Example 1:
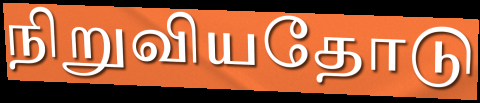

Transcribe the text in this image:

நிறுவியதோடு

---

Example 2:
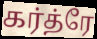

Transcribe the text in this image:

கர்த்ரே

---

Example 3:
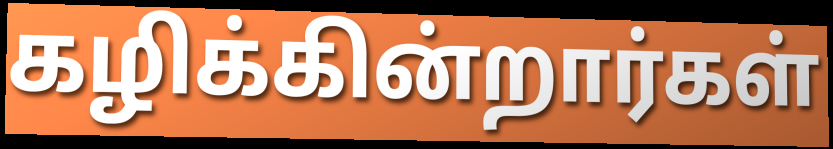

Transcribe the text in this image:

கழிக்கின்றார்கள்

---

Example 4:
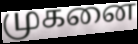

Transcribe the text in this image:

முகனை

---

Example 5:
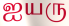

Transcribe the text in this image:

ஐயரு